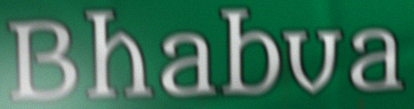
Bhabua